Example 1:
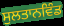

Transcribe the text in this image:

ਸੁਲਤਾਨਵਿੰਡ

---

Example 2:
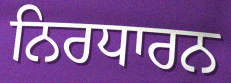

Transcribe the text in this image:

ਨਿਰਧਾਰਨ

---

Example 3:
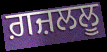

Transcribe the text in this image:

ਗ਼ਜ਼ਲਲੂ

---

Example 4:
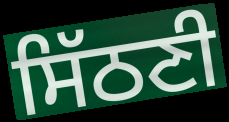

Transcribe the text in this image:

ਸਿੱਠਣੀ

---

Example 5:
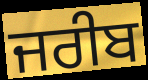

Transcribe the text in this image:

ਜਰੀਬ